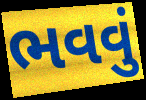
ભવવું